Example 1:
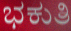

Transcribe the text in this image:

ಭಕುತಿ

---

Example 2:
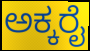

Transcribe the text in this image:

ಅಕ್ಕರೈ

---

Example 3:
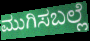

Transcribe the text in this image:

ಮುಗಿಸಬಲ್ಲೆ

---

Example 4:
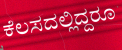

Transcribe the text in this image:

ಕೆಲಸದಲ್ಲಿದ್ದರೂ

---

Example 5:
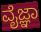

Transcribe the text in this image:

ವೈಜ್ಞಾ